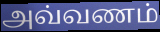
அவ்வணம்